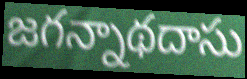
జగన్నాథదాసు